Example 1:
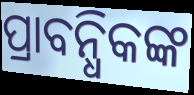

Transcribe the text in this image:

ପ୍ରାବନ୍ଧିକଙ୍କ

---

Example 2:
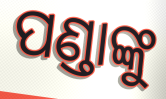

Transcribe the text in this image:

ପଣ୍ଡାଙ୍କୁ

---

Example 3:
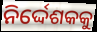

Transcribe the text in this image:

ନିର୍ଦ୍ଦେଶକକୁ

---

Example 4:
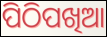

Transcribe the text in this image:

ପିଠିପଖିଆ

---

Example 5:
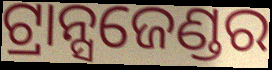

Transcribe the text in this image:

ଟ୍ରାନ୍ସଜେଣ୍ଡର